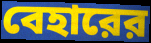
বেহারের